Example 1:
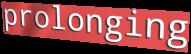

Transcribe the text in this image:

prolonging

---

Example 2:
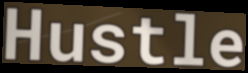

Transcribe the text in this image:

Hustle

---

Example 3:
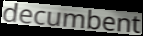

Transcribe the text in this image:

decumbent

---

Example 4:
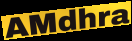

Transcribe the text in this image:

AMdhra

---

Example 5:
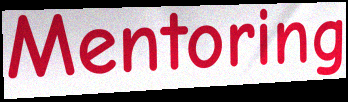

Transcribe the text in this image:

Mentoring